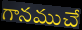
గానముచే